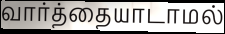
வார்த்தையாடாமல்